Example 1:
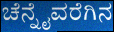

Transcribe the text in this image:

ಚೆನ್ನೈವರೆಗಿನ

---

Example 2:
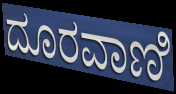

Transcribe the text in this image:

ದೂರವಾಣಿ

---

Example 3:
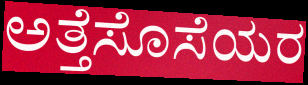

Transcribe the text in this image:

ಅತ್ತೆಸೊಸೆಯರ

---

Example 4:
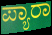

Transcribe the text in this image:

ಪ್ಯಾರಾ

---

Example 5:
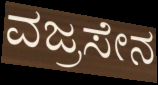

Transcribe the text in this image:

ವಜ್ರಸೇನ